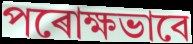
পৰোক্ষভাবে